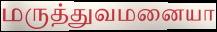
மருத்துவமனையா